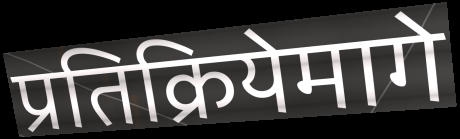
प्रतिक्रियेमागे